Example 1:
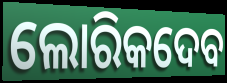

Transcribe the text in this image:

ଲୋରିକଦେବ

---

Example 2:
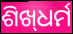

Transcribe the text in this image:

ଶିଖ୍‌ଧର୍ମ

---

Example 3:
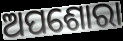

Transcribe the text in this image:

ଅପଶୋରା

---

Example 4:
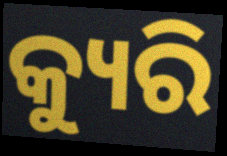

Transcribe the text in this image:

କ୍ୟୁରି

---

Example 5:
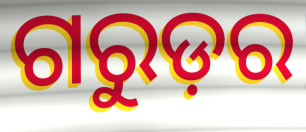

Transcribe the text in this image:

ଗରୁଡ଼ର